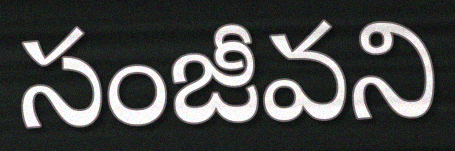
సంజీవని